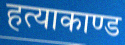
हत्याकाण्ड